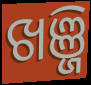
ଖଞ୍ଜି